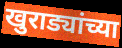
खुराड्यांच्या